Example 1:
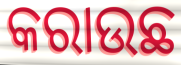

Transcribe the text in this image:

କରାଉଛ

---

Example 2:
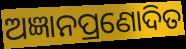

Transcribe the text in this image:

ଅଜ୍ଞାନପ୍ରଣୋଦିତ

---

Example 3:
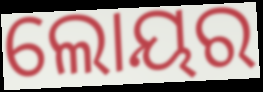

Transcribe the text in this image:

ଲୋୟର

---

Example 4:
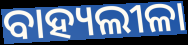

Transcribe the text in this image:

ବାହ୍ୟଲୀଳା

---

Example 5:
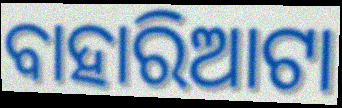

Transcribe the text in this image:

ବାହାରିଆଟା